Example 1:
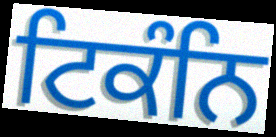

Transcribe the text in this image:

ਟਿਕੰਨਿ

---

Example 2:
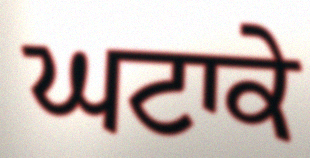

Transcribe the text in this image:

ਘਟਾਕੇ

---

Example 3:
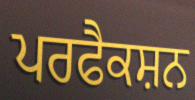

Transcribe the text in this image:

ਪਰਫੈਕਸ਼ਨ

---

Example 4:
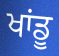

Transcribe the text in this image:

ਖਾਂਡੂ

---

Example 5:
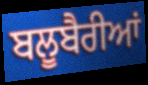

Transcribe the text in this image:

ਬਲੂਬੈਰੀਆਂ